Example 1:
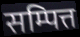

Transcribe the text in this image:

सम्पित्त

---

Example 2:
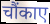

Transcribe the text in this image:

चौंकाए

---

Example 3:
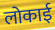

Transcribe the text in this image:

लोकाई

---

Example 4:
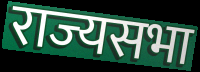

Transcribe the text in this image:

राज्‍यसभा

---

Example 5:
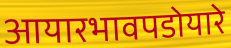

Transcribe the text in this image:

आयारभावपडोयारे